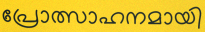
പ്രോത്സാഹനമായി